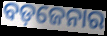
ବଡ଼ଜେନାର